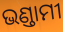
ଭଣ୍ଡାମୀ